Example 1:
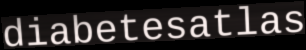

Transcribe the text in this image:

diabetesatlas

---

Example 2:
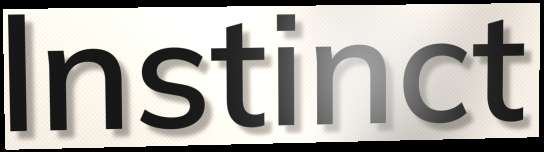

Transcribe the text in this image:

lnstinct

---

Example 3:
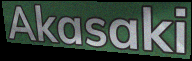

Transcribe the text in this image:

Akasaki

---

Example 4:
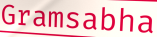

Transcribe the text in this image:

Gramsabha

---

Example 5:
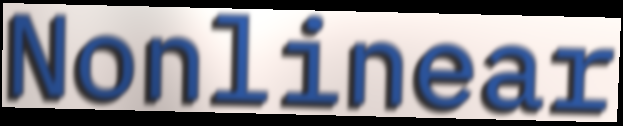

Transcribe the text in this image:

Nonlinear